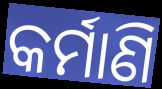
କର୍ମାଣି